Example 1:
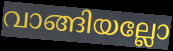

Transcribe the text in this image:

വാങ്ങിയല്ലോ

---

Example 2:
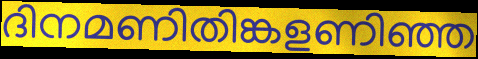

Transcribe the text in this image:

ദിനമണിതിങ്കളണിഞ്ഞ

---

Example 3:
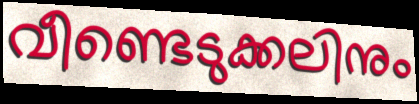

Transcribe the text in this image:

വീണ്ടെടുക്കലിനും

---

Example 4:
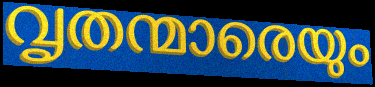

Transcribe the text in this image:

വൃതന്മാരെയും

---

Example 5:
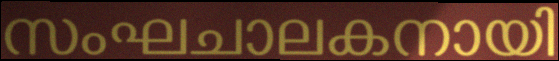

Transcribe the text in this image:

സംഘചാലകനായി